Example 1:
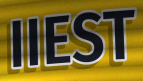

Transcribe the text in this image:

IIEST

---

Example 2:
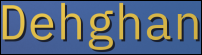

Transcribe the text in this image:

Dehghan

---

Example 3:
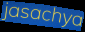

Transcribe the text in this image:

jasachya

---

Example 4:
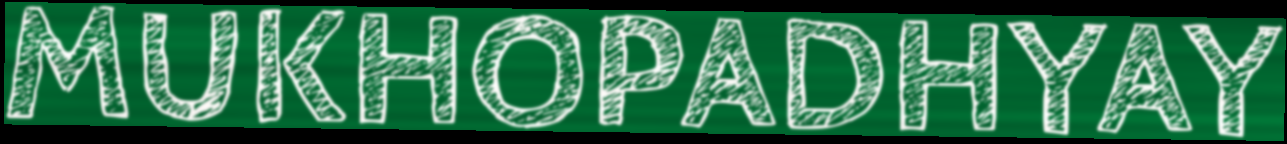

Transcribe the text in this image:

MUKHOPADHYAY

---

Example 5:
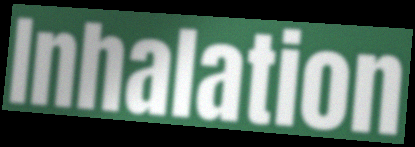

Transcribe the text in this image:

Inhalation